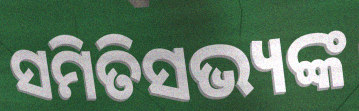
ସମିତିସଭ୍ୟଙ୍କ